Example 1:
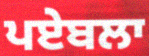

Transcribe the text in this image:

ਪਏਬਲਾ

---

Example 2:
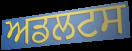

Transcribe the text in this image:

ਅਡਲਟਸ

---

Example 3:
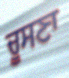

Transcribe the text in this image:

ਚੂਸਣਾ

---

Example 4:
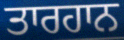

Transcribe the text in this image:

ਤਾਰਹਾਨ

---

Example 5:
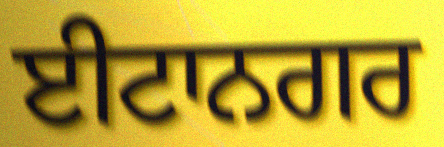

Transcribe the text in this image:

ਈਟਾਨਗਰ